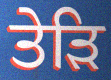
ਤੇੜਿ